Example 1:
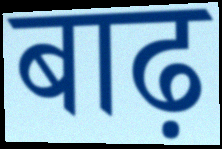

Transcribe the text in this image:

बाढ़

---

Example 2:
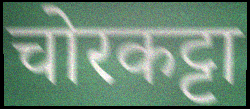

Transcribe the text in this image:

चोरकट्टा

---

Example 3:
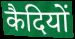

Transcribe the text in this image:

कैदियों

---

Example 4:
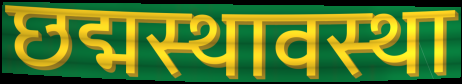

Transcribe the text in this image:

छद्मस्थावस्था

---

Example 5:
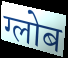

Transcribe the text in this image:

ग्लोब